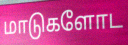
மாடுகளோட